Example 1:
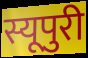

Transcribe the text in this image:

स्यूपुरी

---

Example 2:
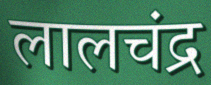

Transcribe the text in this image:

लालचंद्र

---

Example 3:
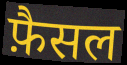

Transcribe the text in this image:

फ़ैसल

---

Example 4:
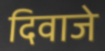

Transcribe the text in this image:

दिवाजे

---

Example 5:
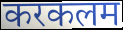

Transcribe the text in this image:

करकलम